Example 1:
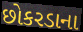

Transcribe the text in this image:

છોકરડાના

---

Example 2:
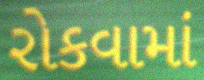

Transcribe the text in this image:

રોકવામાં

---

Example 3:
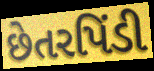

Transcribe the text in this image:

છેતરપિંડી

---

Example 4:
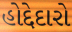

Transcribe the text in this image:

હોદ્દેદારો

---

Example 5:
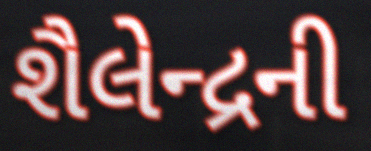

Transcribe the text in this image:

શૈલેન્દ્રની